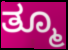
ತ್ಮೂ